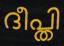
ദീപ്തി